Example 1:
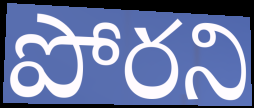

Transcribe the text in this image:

పోరని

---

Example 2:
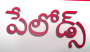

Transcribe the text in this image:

పేలోడ్స్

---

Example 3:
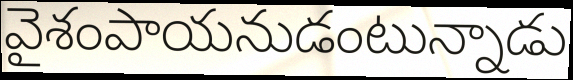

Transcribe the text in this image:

వైశంపాయనుడంటున్నాడు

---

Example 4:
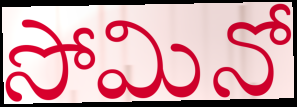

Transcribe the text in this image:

సోమినో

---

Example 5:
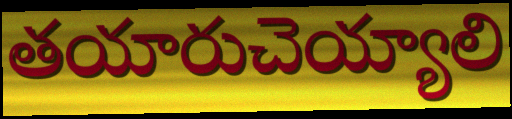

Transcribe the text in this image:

తయారుచెయ్యాలి